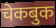
चेकबुक